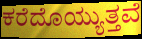
ಕರೆದೊಯ್ಯುತ್ತವೆ